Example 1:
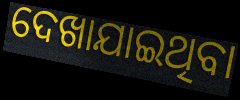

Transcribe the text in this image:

ଦେଖାଯାଇଥିବା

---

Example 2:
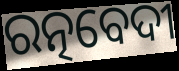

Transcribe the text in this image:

ରତ୍ନବେଦୀ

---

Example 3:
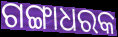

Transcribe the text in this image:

ଗଙ୍ଗାଧରକ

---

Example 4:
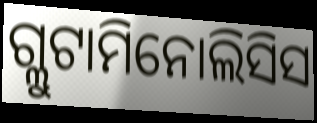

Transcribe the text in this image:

ଗ୍ଲୁଟାମିନୋଲିସିସ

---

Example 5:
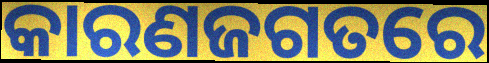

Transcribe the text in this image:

କାରଣଜଗତରେ